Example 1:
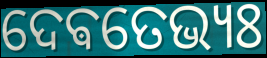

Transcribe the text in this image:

ଦେଵତେଭ୍ୟଃ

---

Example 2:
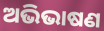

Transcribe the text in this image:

ଅଭିଭାଷଣ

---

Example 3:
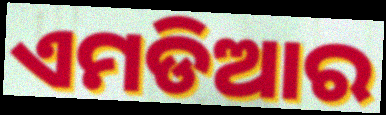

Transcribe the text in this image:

ଏମଡିଆର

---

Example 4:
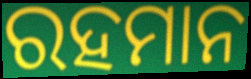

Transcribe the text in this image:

ରହମାନ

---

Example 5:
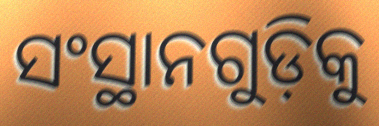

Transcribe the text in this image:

ସଂସ୍ଥାନଗୁଡ଼ିକୁ